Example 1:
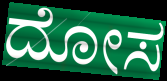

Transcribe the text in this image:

ದೋಸ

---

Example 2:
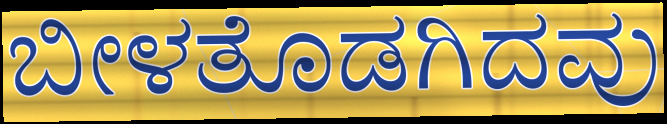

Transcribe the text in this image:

ಬೀಳತೊಡಗಿದವು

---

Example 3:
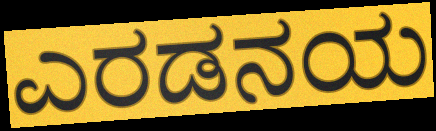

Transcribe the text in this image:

ಎರಡನಯ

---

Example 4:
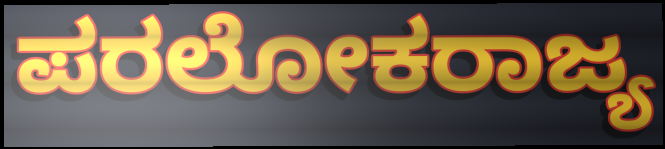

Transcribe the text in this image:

ಪರಲೋಕರಾಜ್ಯ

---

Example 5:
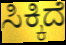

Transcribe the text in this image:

ಸಿಕ್ಕಿದೆ